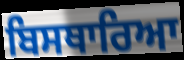
ਬਿਸਥਾਰਿਆ